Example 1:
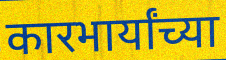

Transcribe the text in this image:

कारभार्यांच्या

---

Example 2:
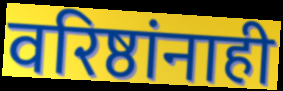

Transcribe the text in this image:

वरिष्ठांनाही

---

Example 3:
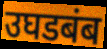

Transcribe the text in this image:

उघडबंब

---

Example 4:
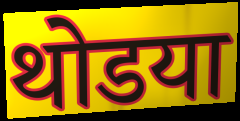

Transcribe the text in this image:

थोडया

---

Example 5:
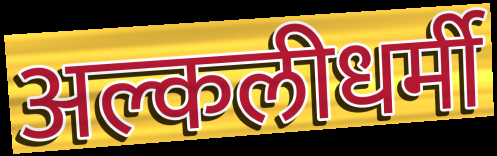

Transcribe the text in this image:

अल्कलीधर्मी